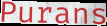
Purans